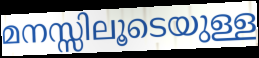
മനസ്സിലൂടെയുള്ള